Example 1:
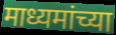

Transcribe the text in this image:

माध्यमांच्या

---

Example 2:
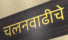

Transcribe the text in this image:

चलनवाढीचे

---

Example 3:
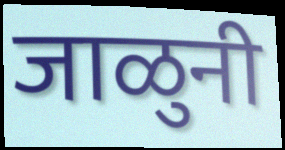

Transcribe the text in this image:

जाळुनी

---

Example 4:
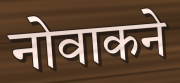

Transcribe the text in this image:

नोवाकने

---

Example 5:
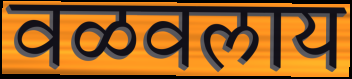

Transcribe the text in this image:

वळवलाय